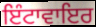
ਇੰਟਾਵਾਇਰ